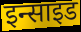
इन्साइड